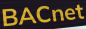
BACnet